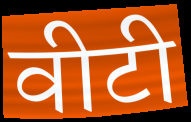
वीटी